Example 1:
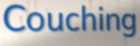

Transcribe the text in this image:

Couching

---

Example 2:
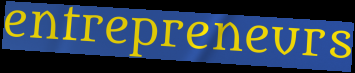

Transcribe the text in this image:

entrepreneurs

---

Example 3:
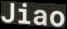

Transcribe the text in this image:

Jiao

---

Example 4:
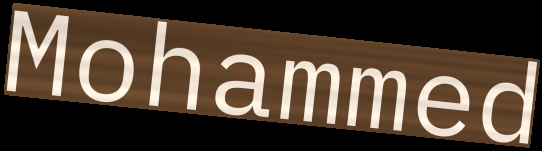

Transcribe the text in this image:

Mohammed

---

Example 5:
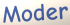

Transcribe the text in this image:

Moder